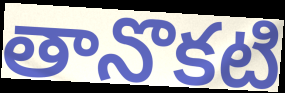
తానొకటి